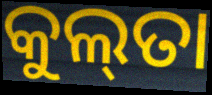
କୁଲ୍‌ତା